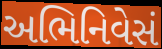
અભિનિવેસં